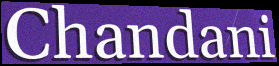
Chandani